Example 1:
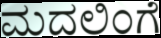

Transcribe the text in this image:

ಮದಲಿಂಗೆ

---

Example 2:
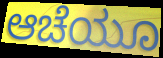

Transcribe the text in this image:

ಆಚೆಯೂ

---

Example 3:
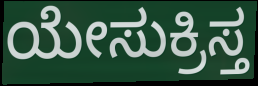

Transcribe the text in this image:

ಯೇಸುಕ್ರಿಸ್ತ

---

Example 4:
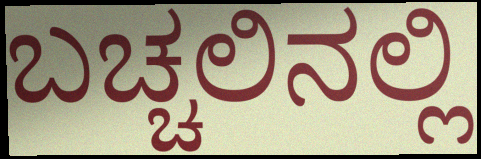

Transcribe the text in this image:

ಬಚ್ಚಲಿನಲ್ಲಿ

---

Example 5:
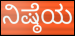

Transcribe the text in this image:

ನಿಷ್ಠೆಯ